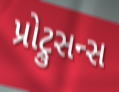
પ્રોટ્રુસન્સ